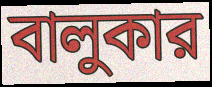
বালুকার